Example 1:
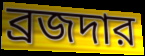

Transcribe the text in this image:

ব্রজদার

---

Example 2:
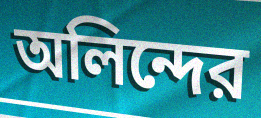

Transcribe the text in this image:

অলিন্দের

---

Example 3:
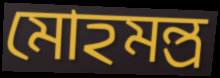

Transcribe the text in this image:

মোহমন্ত্র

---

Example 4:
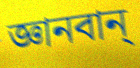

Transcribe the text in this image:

জ্ঞানবান্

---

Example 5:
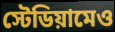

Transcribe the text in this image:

স্টেডিয়ামেও